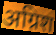
अग्रिश